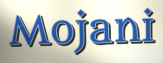
Mojani